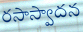
రసాస్వాదన